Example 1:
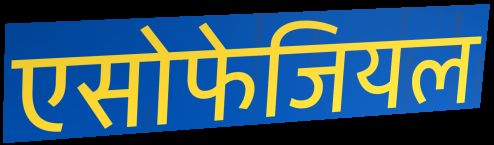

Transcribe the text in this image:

एसोफेजियल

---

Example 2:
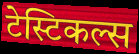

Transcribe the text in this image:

टेस्टिकल्स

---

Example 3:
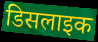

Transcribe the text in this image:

डिसलाइक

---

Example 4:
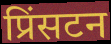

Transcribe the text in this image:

प्रिंसटन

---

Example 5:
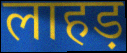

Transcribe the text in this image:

लाहड़